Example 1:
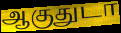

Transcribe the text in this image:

ஆகுதுடா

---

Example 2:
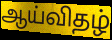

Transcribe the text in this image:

ஆய்விதழ்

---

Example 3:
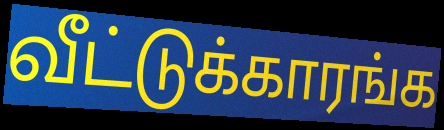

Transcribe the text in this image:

வீட்டுக்காரங்க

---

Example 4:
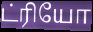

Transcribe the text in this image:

ட்ரியோ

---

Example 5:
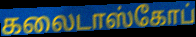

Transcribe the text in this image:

கலைடாஸ்கோப்